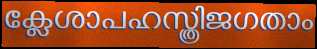
ക്ലേശാപഹസ്ത്രിജഗതാം